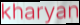
kharyan